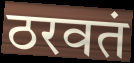
ठरवतं